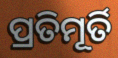
ପ୍ରତିମୂର୍ତି